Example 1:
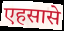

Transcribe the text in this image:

एहसासे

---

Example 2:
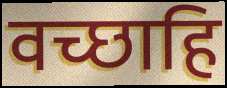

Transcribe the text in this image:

वच्छाहि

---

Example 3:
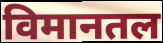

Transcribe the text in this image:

विमानतल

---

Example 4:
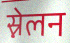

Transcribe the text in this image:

स्नेलन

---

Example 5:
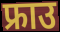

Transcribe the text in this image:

फ्राउ